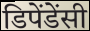
डिपेंडेंसी